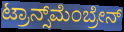
ಟ್ರಾನ್ಸ್‌ಮೆಂಬ್ರೇನ್